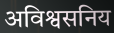
अविश्वसनिय